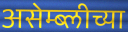
असेम्ब्लीच्या